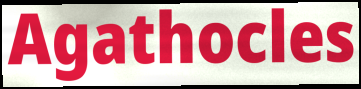
Agathocles